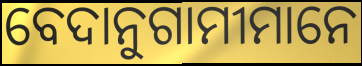
ବେଦାନୁଗାମୀମାନେ